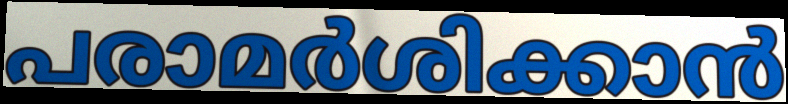
പരാമർശിക്കാൻ